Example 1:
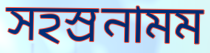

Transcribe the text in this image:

সহস্রনামম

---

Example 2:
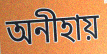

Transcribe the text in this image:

অনীহায়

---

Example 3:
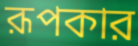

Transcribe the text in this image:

রূপকার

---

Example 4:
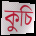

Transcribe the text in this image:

কুচি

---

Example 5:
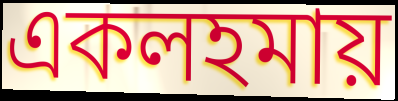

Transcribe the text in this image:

একলহমায়